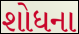
શોધના